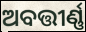
ଅବତ୍ତୀର୍ଣ୍ଣ